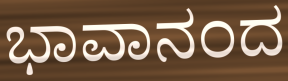
ಭಾವಾನಂದ